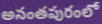
అనంతపురంలో